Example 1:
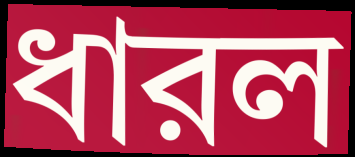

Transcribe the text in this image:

ধারল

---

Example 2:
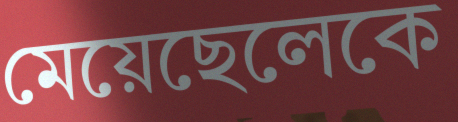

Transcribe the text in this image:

মেয়েছেলেকে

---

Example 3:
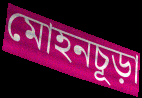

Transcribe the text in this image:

মোহনচূড়া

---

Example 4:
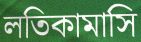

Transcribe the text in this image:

লতিকামাসি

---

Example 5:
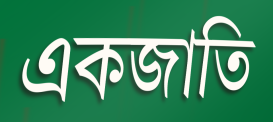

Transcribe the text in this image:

একজাতি